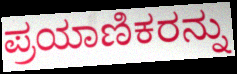
ಪ್ರಯಾಣಿಕರನ್ನು